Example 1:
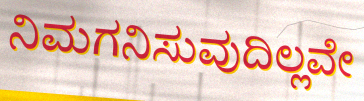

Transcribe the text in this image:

ನಿಮಗನಿಸುವುದಿಲ್ಲವೇ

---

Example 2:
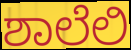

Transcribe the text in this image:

ಶಾಲೆಲಿ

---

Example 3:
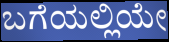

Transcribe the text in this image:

ಬಗೆಯಲ್ಲಿಯೇ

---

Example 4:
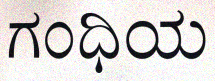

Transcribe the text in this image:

ಗಂಧಿಯ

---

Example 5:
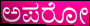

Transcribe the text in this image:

ಅಪರೋ